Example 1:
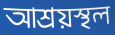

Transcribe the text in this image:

আশ্ৰয়স্থল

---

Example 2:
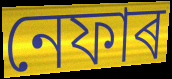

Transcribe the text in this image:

নেফাৰ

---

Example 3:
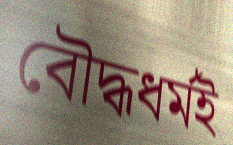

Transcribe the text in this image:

বৌদ্ধধৰ্মই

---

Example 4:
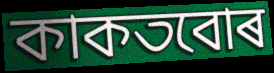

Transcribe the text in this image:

কাকতবোৰ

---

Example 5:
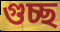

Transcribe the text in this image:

গুচ্ছ